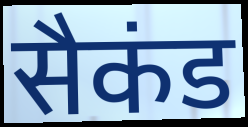
सैकंड